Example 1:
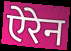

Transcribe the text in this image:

ऐरेन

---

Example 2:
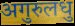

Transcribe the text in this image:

अगुरुलधु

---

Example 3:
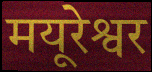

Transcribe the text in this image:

मयूरेश्वर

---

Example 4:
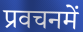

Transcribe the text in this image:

प्रवचनमें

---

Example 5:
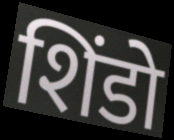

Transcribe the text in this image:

शिंडो